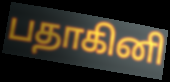
பதாகினி